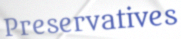
Preservatives